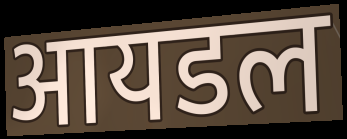
आयडल